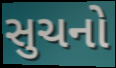
સુચનો